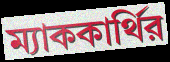
ম্যাককার্থির